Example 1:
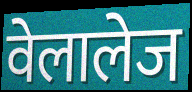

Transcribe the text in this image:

वेलालेज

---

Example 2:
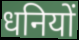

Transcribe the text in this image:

धनियों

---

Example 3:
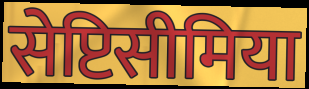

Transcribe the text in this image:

सेप्टिसीमिया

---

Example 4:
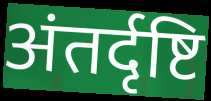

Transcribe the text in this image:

अंतर्दृष्टि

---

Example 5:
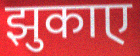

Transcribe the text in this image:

झुकाए